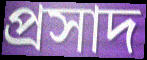
প্ৰসাদ